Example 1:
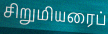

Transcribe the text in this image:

சிறுமியரைப்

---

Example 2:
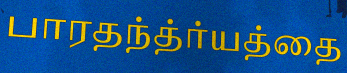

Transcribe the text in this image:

பாரதந்த்ர்யத்தை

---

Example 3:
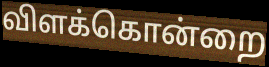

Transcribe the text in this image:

விளக்கொன்றை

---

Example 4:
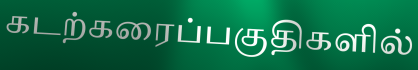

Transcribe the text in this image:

கடற்கரைப்பகுதிகளில்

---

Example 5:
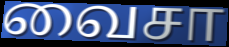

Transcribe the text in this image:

வைசா